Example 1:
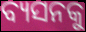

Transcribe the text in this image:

ବ୍ୟସନକୁ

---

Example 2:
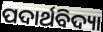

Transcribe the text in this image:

ପଦାର୍ଥବିଦ୍ୟା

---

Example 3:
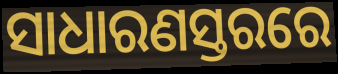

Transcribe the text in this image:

ସାଧାରଣସ୍ତରରେ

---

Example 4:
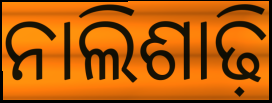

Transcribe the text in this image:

ନାଲିଶାଢ଼ି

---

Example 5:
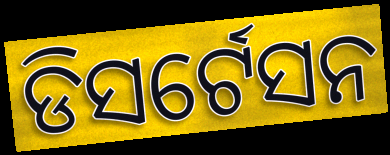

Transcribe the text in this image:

ଡିସର୍ଟେସନ